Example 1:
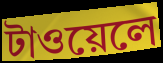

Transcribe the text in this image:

টাওয়েলে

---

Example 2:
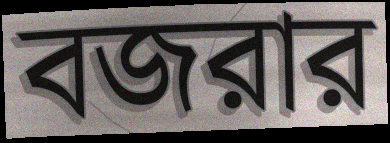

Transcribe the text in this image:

বজরার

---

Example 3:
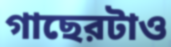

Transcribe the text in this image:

গাছেরটাও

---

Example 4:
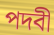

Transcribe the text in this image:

পদবী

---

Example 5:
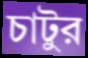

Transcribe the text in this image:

চাটুর